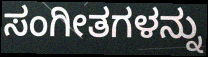
ಸಂಗೀತಗಳನ್ನು